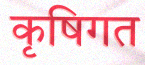
कृषिगत